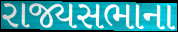
રાજ્યસભાના